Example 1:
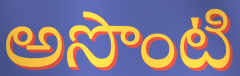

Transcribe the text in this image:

అసొంటి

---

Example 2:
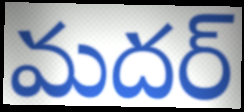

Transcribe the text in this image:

మదర్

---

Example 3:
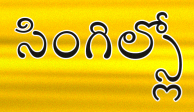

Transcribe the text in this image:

సింగిల్స్లో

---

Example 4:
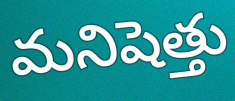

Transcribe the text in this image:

మనిషెత్తు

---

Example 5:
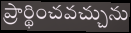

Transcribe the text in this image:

ప్రార్థించవచ్చును